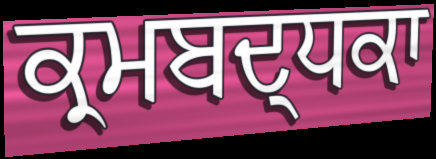
ਕ੍ਰਮਬਦ੍ਧਕਾ